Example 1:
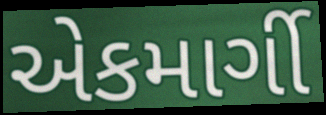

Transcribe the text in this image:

એકમાર્ગી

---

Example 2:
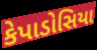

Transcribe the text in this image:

કેપાડોસિયા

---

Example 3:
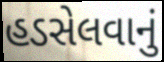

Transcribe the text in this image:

હડસેલવાનું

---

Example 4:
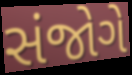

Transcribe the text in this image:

સંજોગે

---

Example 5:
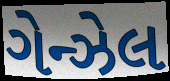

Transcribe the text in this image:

ગેન્ઝેલ